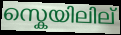
സ്കെയിലില്